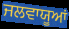
ਜਲਵਾਯੂਆਂ